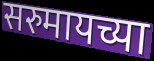
सरुमायच्या